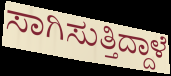
ಸಾಗಿಸುತ್ತಿದ್ದಾಳೆ